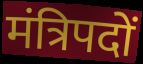
मंत्रिपदों